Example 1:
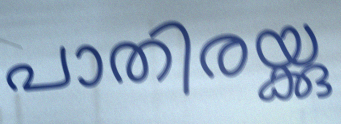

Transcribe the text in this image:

പാതിരയ്ക്കു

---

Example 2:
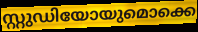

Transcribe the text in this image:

സ്റ്റുഡിയോയുമൊക്കെ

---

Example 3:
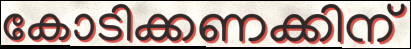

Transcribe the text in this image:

കോടിക്കണക്കിന്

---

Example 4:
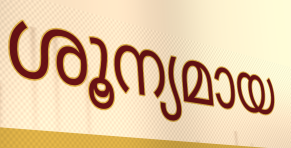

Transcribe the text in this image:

ശൂന്യമായ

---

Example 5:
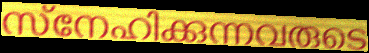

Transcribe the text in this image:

സ്‌നേഹിക്കുന്നവരുടെ